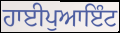
ਹਾਈਪੁਆਇੰਟ